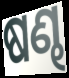
ଷଣ୍ଢ